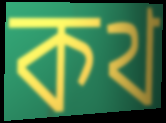
কথ